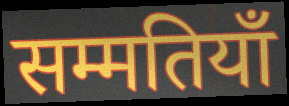
सम्मतियाँ